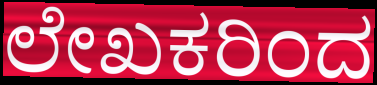
ಲೇಖಕರಿಂದ